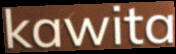
kawita